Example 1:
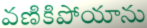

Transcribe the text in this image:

వణికిపోయాను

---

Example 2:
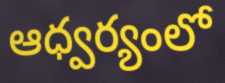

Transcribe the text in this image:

ఆధ్వర్యంలో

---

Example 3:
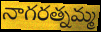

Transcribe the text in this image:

నాగరత్నమ్మ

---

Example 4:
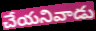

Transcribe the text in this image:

చేయనివాడు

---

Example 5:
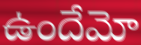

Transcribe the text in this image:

ఉందేమో